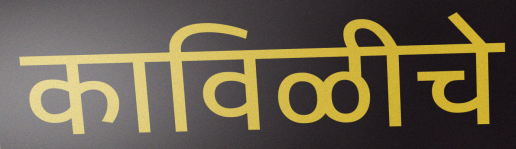
काविळीचे